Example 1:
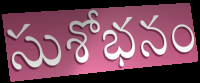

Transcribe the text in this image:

సుశోభనం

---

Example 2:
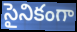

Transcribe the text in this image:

సైనికంగా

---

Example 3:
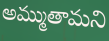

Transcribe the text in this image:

అమ్ముతామని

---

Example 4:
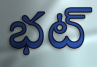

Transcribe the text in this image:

భట్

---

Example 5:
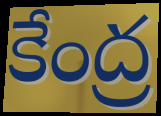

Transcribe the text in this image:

కేంద్ర